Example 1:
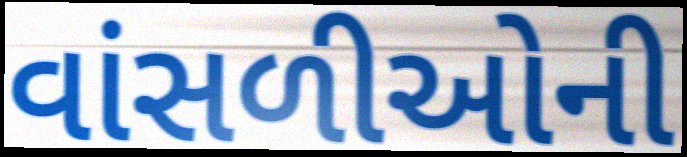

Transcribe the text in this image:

વાંસળીઓની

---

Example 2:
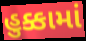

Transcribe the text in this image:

હુક્કામાં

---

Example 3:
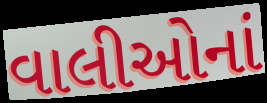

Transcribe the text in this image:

વાલીઓનાં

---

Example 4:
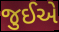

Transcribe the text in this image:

જુઈએ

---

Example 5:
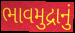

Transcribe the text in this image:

ભાવમુદ્રાનું